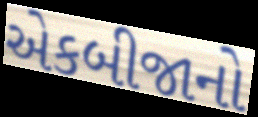
એકબીજાનો